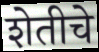
शेतीचे